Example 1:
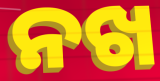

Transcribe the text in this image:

ନଖ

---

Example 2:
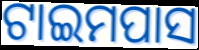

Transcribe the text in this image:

ଟାଇମପାସ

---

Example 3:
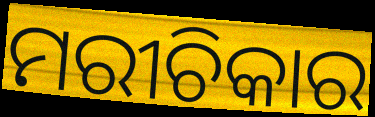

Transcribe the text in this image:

ମରୀଚିକାର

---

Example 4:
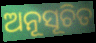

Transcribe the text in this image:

ଅନୂସୂଚିତ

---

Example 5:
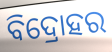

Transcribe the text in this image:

ବିଦ୍ରୋହର